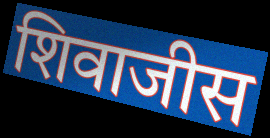
शिवाजीस